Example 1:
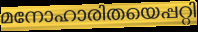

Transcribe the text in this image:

മനോഹാരിതയെപ്പറ്റി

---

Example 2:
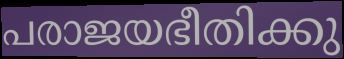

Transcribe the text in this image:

പരാജയഭീതിക്കു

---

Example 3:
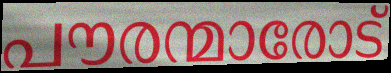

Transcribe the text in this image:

പൗരന്മാരോട്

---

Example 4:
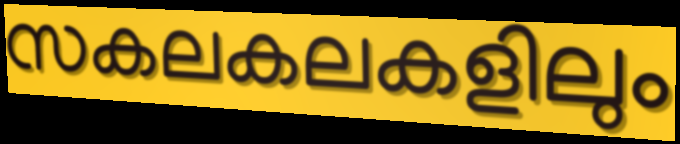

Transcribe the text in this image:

സകലകലകളിലും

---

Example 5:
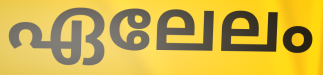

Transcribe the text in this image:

ഏലേലം